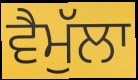
ਵੈਮੁੱਲਾ